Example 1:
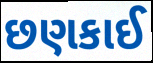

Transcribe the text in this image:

છણકાઈ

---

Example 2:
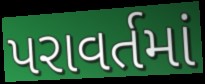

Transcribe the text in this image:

પરાવર્તમાં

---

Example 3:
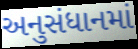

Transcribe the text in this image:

અનુસંધાનમાં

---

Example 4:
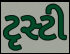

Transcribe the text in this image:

ટૃસ્ટી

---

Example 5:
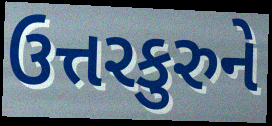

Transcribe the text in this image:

ઉત્તરકુરુને